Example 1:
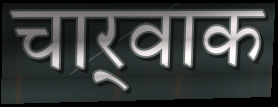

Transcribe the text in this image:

चार्वाक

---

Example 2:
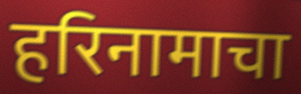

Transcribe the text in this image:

हरिनामाचा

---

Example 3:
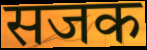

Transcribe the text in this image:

सजक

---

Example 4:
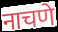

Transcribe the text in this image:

नाचणे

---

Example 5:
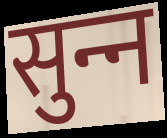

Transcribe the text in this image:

सुन्‍न